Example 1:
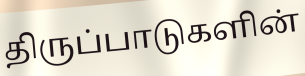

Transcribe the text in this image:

திருப்பாடுகளின்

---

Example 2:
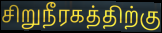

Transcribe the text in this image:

சிறுநீரகத்திற்கு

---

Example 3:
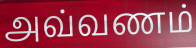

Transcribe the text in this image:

அவ்வணம்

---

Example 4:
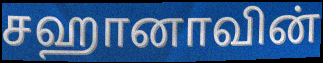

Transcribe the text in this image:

சஹானாவின்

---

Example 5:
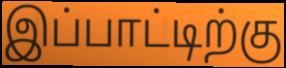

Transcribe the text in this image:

இப்பாட்டிற்கு